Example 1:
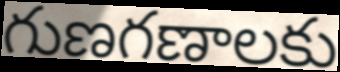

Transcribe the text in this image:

గుణగణాలకు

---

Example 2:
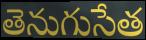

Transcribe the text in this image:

తెనుగుసేత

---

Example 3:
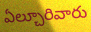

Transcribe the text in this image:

ఏల్చూరివారు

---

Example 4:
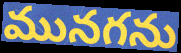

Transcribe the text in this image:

మునగను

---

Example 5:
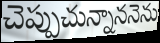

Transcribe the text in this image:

చెప్పుచున్నాననెను